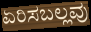
ಏರಿಸಬಲ್ಲವು